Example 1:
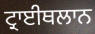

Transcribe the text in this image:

ਟ੍ਰਾਈਥਲਾਨ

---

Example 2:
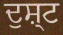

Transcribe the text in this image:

ਦੁਸ਼੍ਟ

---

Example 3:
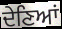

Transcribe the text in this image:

ਦੇਣਿਆਂ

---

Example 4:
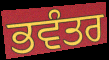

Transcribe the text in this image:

ਭਵੰਤਰ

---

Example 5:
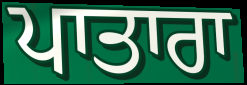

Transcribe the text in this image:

ਪਾਤਾਰਾ